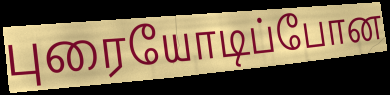
புரையோடிப்போன